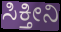
ಸಿಕ್ತೀನಿ